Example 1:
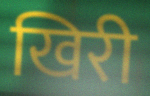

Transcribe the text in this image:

खिरी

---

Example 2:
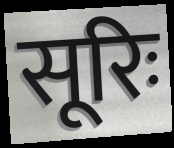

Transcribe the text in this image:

सूरिः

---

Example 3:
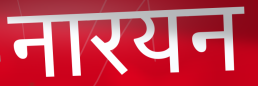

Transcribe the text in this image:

नारयन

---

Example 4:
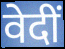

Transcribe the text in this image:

वेदीं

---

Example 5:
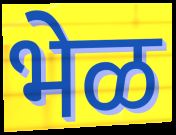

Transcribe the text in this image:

भेळ